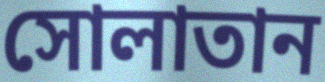
সোলাতান